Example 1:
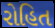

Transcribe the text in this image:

રોહિત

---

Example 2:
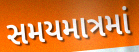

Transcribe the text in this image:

સમયમાત્રમાં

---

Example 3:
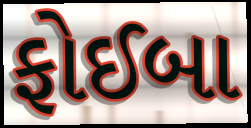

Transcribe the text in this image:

ફોઈબા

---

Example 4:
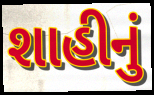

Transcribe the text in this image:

શાહીનું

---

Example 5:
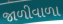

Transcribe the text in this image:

જાળીવાળા